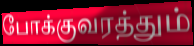
போக்குவரத்தும்